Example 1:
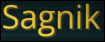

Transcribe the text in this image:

Sagnik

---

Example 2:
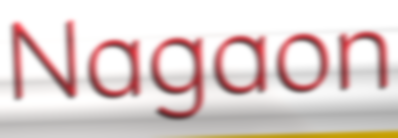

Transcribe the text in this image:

Nagaon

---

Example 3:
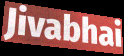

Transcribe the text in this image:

Jivabhai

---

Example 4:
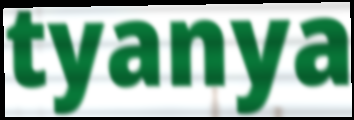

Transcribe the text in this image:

tyanya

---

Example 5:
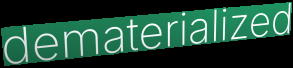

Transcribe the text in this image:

dematerialized